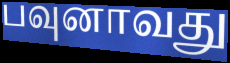
பவுனாவது